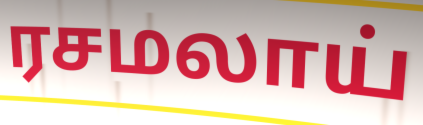
ரசமலாய்